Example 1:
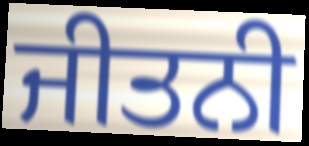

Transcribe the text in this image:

ਜੀਤਨੀ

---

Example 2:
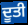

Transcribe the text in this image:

ਦੂਤੀ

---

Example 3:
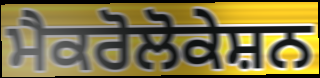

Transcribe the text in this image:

ਮੈਕਰੋਲੋਕੇਸ਼ਨ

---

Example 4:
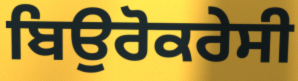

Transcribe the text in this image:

ਬਿਉਰੋਕਰੇਸੀ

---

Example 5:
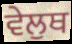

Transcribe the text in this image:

ਵੇਲੁਥ